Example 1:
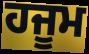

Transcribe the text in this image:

ਹਜੂਮ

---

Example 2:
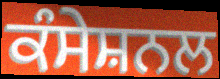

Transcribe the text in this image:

ਕੰਸੇਸ਼ਨਲ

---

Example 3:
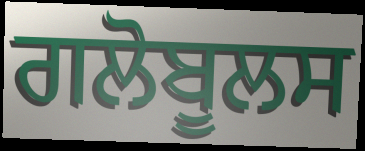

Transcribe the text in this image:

ਗਲੋਬੂਲਸ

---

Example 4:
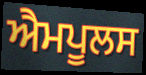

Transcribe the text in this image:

ਐਮਪੂਲਸ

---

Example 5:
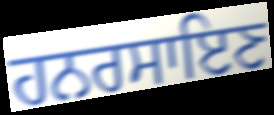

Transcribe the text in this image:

ਹਨਰਸਾਇਣ